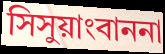
সিসুয়াংবাননা